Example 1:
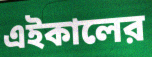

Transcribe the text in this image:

এইকালের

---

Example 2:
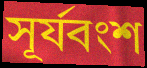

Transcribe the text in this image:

সূর্যবংশ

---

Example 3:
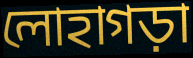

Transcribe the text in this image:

লোহাগড়া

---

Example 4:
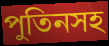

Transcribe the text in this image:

পুতিনসহ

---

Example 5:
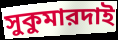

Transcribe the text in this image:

সুকুমারদাই